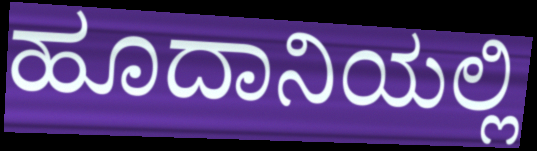
ಹೂದಾನಿಯಲ್ಲಿ